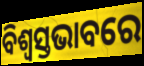
ବିଶ୍ୱସ୍ତଭାବରେ